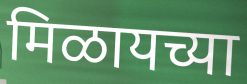
मिळायच्या